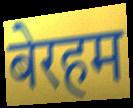
बेरहम